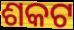
ଶକଟ